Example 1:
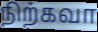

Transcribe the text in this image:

நிற்கவா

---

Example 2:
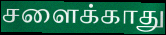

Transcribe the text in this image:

சளைக்காது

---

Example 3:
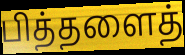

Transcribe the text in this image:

பித்தளைத்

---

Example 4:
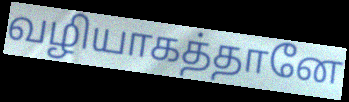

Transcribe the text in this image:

வழியாகத்தானே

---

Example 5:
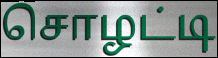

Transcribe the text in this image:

சொழட்டி